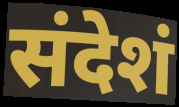
संदेशं